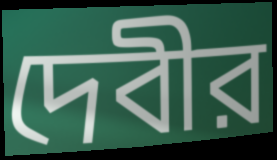
দেবীর